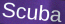
Scuba